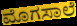
ಮೊಗಸಾಲೆ